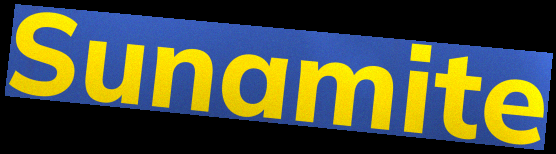
Sunamite